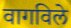
वागविले